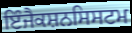
ਇੰਜੈਕਸ਼ਨਸਿਸਟਮ